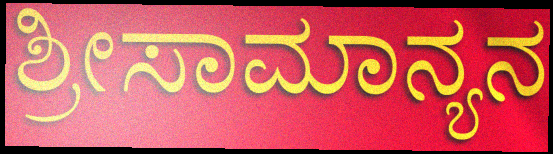
ಶ್ರೀಸಾಮಾನ್ಯನ